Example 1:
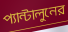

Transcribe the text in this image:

প্যান্টালুনের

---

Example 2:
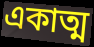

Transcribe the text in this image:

একাত্ম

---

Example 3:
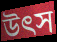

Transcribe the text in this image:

উৎস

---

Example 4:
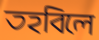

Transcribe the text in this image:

তহবিলে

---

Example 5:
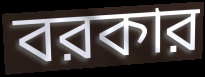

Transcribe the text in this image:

বরকার